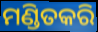
ମଣ୍ଡିତକରି